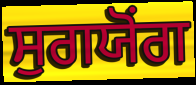
ਸੁਗਯੋਂਗ